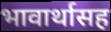
भावार्थासह